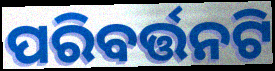
ପରିବର୍ତ୍ତନଟି